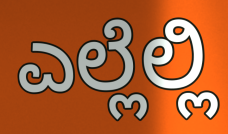
ಎಲ್ಲೆಲ್ಲಿ